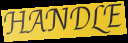
HANDLE